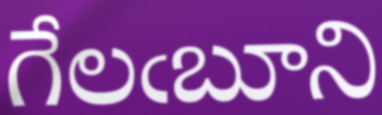
గేలఁబూని